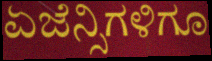
ಏಜೆನ್ಸಿಗಳಿಗೂ